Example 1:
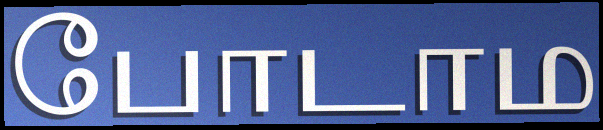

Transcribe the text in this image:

போடாம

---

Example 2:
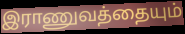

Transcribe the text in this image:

இராணுவத்தையும்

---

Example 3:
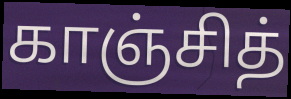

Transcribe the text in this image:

காஞ்சித்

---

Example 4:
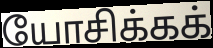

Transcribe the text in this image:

யோசிக்கக்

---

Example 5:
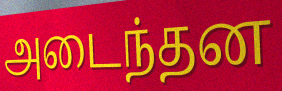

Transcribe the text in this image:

அடைந்தன